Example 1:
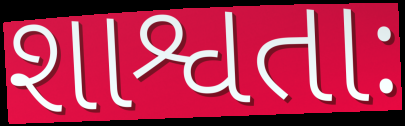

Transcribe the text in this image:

શાશ્વતાઃ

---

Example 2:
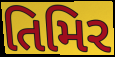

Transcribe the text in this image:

તિમિર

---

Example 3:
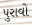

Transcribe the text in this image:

પુરાવો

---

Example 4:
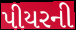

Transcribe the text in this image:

પીયરની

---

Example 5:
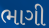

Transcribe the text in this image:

ભાગી